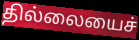
தில்லையைச்